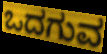
ಒದಗುವ